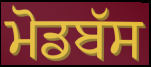
ਮੋਡਬੱਸ